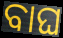
ବାଘ